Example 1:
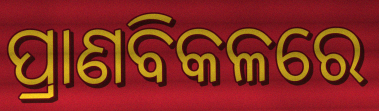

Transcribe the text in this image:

ପ୍ରାଣବିକଳରେ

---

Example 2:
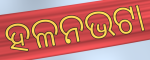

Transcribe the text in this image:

ହଳନଭଟା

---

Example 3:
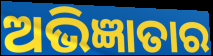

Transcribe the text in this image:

ଅଭିଜ୍ଞାତାର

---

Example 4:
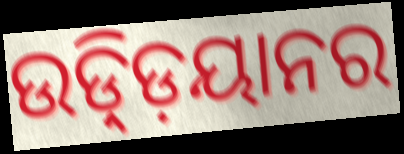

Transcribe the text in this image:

ଉଡ଼୍ଡ଼ିୟାନର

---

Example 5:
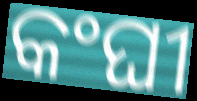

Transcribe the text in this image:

କଂଘୀ